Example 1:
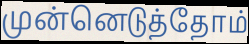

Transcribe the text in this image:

முன்னெடுத்தோம்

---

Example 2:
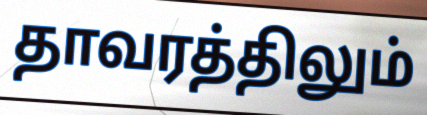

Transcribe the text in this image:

தாவரத்திலும்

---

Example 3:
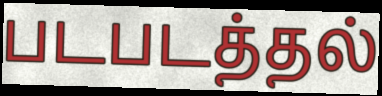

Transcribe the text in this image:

படபடத்தல்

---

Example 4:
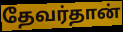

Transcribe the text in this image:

தேவர்தான்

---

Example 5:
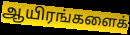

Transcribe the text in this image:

ஆயிரங்களைக்